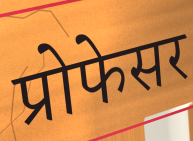
प्रोफेसर